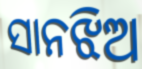
ସାନଝିଅ